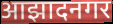
आझादनगर